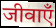
जीवाएँ